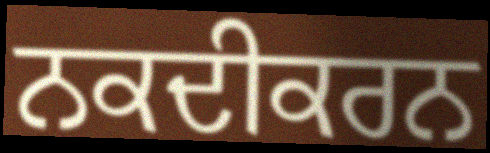
ਨਕਦੀਕਰਨ